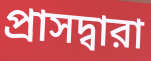
প্রাসদ্বারা